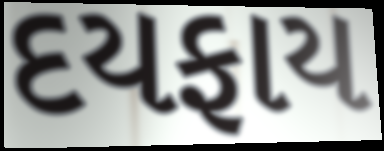
દયફાય